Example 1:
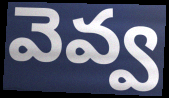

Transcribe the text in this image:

వెవ్వ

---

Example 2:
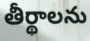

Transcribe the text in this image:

తీర్థాలను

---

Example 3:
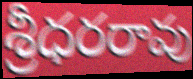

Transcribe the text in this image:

శ్రీధరరావు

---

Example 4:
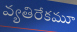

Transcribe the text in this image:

వ్యతిరేకమూ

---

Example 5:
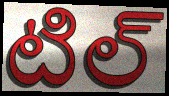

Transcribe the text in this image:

టిల్